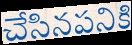
చేసినపనికి